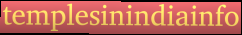
templesinindiainfo